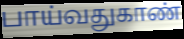
பாய்வதுகாண்